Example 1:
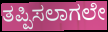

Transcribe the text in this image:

ತಪ್ಪಿಸಲಾಗಲೇ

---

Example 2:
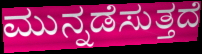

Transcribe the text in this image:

ಮುನ್ನಡೆಸುತ್ತದೆ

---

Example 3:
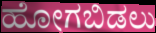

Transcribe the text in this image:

ಹೋಗಬಿಡಲು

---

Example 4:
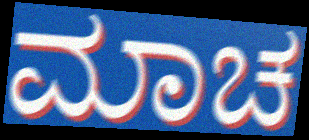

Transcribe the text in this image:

ಮಾಚ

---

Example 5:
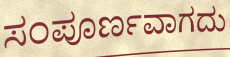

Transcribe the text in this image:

ಸಂಪೂರ್ಣವಾಗದು